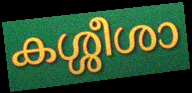
കശ്ശീശാ